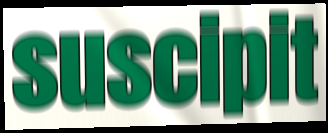
suscipit